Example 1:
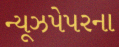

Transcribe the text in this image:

ન્યૂઝપેપરના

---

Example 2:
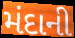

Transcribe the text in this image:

મંદાની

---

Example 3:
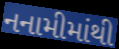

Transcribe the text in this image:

નનામીમાંથી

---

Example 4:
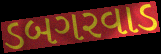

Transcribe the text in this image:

ડબગરવાડ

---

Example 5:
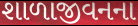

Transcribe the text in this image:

શાળાજીવનના